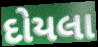
દોયલા